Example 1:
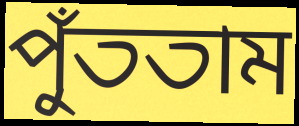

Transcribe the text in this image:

পুঁততাম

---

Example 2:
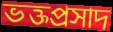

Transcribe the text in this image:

ভক্তপ্রসাদ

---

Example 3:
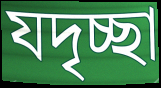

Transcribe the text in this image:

যদৃচ্ছা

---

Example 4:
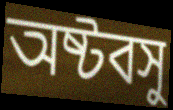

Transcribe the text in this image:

অষ্টবসু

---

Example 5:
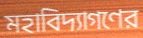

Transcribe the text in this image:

মহাবিদ্যাগণের